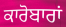
ਕਾਰੋਬਾਰਾਂ